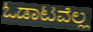
ಓಡಾಟವೆಲ್ಲ